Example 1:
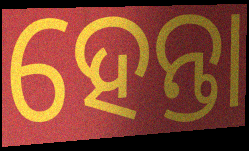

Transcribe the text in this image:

ହେନ୍ତା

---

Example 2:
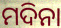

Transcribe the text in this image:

ମଦିନା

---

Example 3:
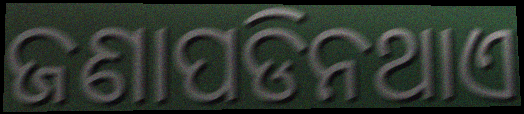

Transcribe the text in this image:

ଜଣାପଡିନଥାଏ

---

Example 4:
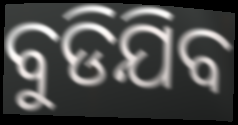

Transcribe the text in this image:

ବୁଡିଯିବ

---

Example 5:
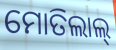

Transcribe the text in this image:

ମୋତିଲାଲ୍